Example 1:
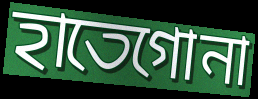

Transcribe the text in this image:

হাতেগোনা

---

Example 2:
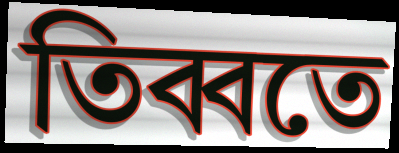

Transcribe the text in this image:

তিব্বতে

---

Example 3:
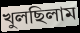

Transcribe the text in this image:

খুলছিলাম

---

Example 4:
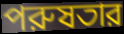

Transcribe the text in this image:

পরুষতার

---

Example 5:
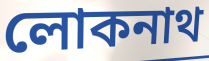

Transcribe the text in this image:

লোকনাথ